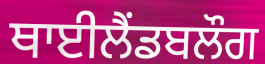
ਥਾਈਲੈਂਡਬਲੌਗ